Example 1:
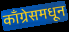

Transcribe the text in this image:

काँग्रेसमधून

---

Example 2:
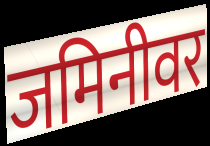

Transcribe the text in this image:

जमिनीवर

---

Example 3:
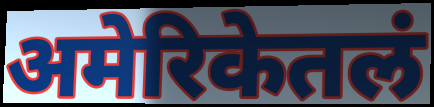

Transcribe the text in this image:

अमेरिकेतलं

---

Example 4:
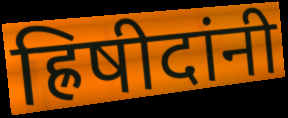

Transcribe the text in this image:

ह्रिषीदांनी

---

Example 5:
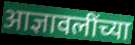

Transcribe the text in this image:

आज्ञावलींच्या